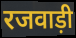
रजवाड़ी